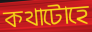
কথাটোহে